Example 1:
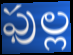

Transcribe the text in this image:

ఫుల్ల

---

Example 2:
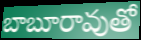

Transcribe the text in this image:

బాబూరావుతో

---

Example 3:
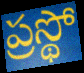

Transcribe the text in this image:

ప్రస్థో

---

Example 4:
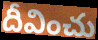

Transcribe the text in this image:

దీవించు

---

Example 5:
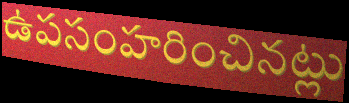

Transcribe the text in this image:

ఉపసంహరించినట్లు